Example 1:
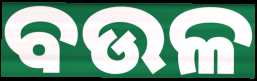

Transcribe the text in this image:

ବଉଳ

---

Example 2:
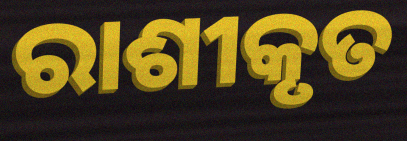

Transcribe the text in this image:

ରାଶୀକୃତ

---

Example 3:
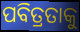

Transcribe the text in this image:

ପବିତ୍ରତାକୁ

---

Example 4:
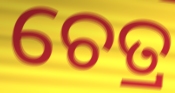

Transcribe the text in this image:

ଚେତ୍ର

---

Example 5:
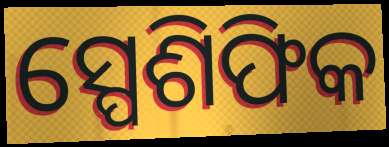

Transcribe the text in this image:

ସ୍ପେଶିଫିକ